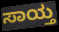
ಸಾಯ್ತ